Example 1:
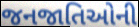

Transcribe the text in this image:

જનજાતિઓની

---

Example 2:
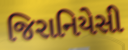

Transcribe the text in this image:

જિરાનિયેસી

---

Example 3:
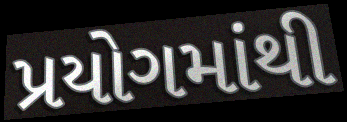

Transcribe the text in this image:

પ્રયોગમાંથી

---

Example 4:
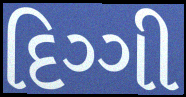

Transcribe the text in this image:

દિગ્ગી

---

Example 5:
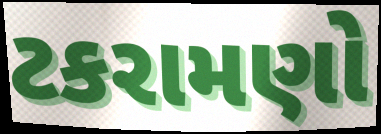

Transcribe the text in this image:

ટકરામણો